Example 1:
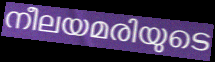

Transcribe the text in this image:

നീലയമരിയുടെ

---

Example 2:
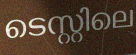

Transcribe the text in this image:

ടെസ്റ്റിലെ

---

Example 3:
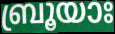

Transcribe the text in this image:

ബ്രൂയാഃ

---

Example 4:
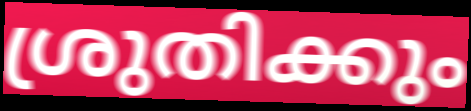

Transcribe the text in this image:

ശ്രുതിക്കും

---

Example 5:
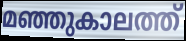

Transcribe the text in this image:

മഞ്ഞുകാലത്ത്